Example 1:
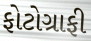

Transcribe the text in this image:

ફોટોગ્રાફી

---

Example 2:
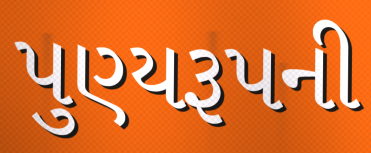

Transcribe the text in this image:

પુણ્યરૂપની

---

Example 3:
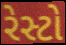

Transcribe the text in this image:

રેસ્ટો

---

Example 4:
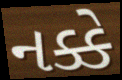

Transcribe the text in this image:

નક્કે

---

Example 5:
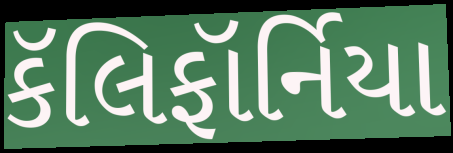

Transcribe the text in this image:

કૅલિફૉર્નિયા